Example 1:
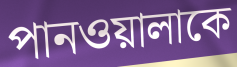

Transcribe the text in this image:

পানওয়ালাকে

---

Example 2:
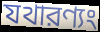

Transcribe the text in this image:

যথারণ্যং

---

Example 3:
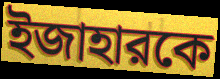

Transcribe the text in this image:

ইজাহারকে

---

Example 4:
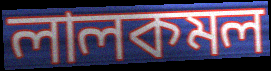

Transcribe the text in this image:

লালকমল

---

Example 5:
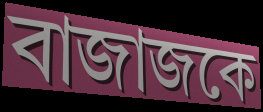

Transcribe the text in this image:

বাজাজকে